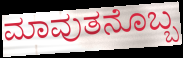
ಮಾವುತನೊಬ್ಬ